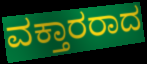
ವಕ್ತಾರರಾದ